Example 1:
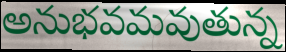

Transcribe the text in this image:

అనుభవమవుతున్న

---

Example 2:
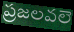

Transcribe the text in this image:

ప్రజలవలె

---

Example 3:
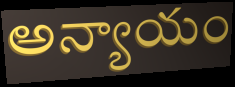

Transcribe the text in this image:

అన్యాయం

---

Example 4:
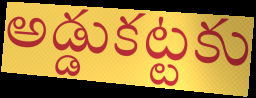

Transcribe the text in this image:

అడ్డుకట్టకు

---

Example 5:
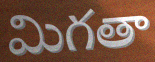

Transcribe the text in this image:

మిగతా